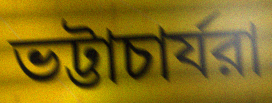
ভট্টাচার্যরা